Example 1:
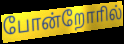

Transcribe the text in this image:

போன்றோரில்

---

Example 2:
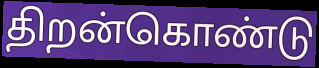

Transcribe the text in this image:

திறன்கொண்டு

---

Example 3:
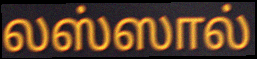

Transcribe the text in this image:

லஸ்ஸால்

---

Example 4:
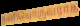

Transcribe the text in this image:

தனியொருவராக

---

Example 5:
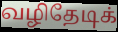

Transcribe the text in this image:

வழிதேடிக்